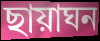
ছায়াঘন